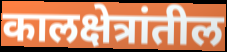
कालक्षेत्रांतील